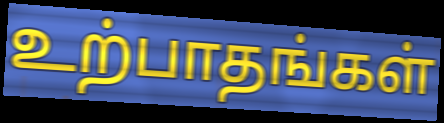
உற்பாதங்கள்